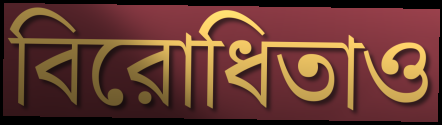
বিরোধিতাও